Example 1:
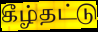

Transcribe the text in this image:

கீழ்தட்டு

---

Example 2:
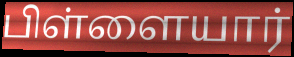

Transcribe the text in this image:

பிள்ளையார்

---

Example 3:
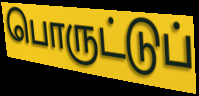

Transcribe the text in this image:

பொருட்டுப்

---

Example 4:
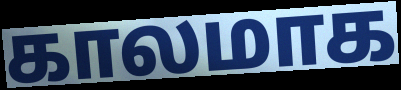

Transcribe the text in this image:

காலமாக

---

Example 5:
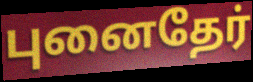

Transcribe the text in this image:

புனைதேர்